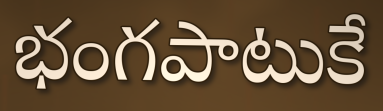
భంగపాటుకే